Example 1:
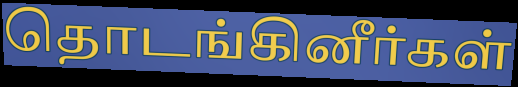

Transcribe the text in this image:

தொடங்கினீர்கள்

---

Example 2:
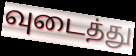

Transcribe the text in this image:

வுடைத்து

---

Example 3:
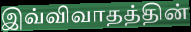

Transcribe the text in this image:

இவ்விவாதத்தின்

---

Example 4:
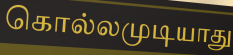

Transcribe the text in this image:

கொல்லமுடியாது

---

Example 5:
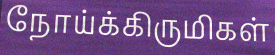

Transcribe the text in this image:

நோய்க்கிருமிகள்